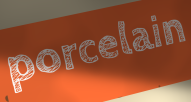
porcelain